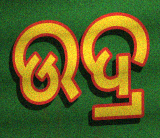
ଉଦ୍ର